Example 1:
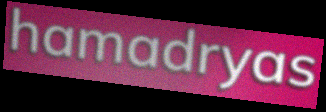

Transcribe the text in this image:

hamadryas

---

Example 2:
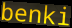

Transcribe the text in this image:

benki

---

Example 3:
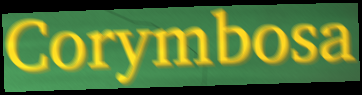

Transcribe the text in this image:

Corymbosa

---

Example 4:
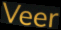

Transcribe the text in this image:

Veer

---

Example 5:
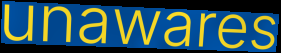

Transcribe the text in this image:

unawares